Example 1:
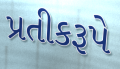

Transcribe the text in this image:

પ્રતીકરૂપે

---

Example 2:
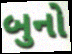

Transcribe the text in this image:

બુનો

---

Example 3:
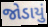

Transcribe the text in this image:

જોડાયું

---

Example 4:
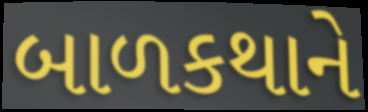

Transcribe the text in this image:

બાળકથાને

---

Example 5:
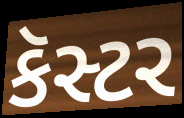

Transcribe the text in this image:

કૅસ્ટર